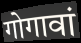
गोगावां